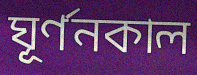
ঘূর্ণনকাল